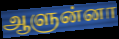
ஆளுன்னா